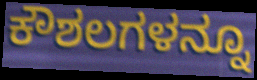
ಕೌಶಲಗಳನ್ನೂ